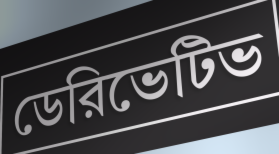
ডেরিভেটিভ